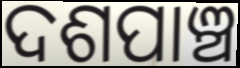
ଦଶପାଞ୍ଚ